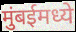
मुंबईमध्ये